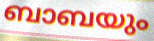
ബാബയും